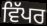
ਵਿੱਪਰ